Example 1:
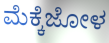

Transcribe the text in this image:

ಮೆಕ್ಕೆಜೋಳ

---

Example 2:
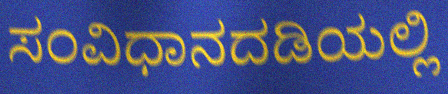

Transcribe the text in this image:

ಸಂವಿಧಾನದಡಿಯಲ್ಲಿ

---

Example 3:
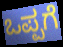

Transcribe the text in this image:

ಒಪ್ಪಗೆ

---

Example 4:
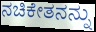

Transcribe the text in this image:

ನಚಿಕೇತನನ್ನು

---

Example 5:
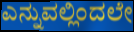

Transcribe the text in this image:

ಎನ್ನುವಲ್ಲಿಂದಲೇ